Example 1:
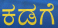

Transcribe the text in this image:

ಕಡಗೆ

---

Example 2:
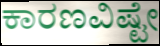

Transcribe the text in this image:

ಕಾರಣವಿಷ್ಟೇ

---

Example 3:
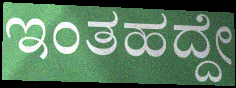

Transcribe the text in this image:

ಇಂತಹದ್ದೇ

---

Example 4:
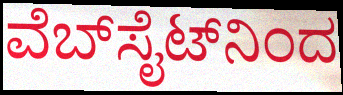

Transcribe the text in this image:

ವೆಬ್‍ಸೈಟ್‍ನಿಂದ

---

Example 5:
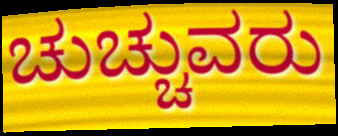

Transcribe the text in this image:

ಚುಚ್ಚುವರು